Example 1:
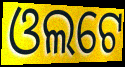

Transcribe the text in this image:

ଓଲଟେ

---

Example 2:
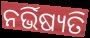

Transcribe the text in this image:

ନର୍ଭିଷ୍ୟତି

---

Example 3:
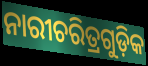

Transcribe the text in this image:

ନାରୀଚରିତ୍ରଗୁଡ଼ିକ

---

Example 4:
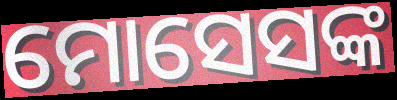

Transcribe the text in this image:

ମୋସେସଙ୍କ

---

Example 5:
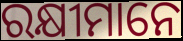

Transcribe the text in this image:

ରକ୍ଷୀମାନେ